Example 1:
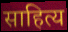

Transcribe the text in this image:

साहित्य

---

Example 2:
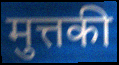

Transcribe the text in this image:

मुत्तकी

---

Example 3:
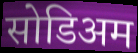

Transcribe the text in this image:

सोडिअम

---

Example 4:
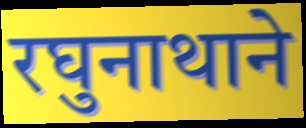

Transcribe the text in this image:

रघुनाथाने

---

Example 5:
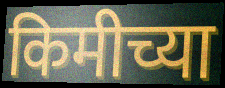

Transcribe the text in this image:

किमीच्या